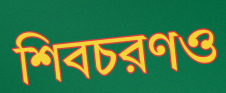
শিবচরণও